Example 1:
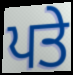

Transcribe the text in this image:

ਪਤੇ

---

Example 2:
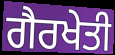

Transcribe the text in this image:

ਗੈਰਖੇਤੀ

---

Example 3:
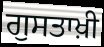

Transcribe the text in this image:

ਗੁਸਤਾਖ਼ੀ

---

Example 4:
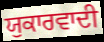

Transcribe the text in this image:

ਯੁਕਾਰਵਾਦੀ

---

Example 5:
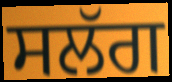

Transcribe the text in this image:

ਸਲੱਗ